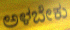
ಅಳಬೇಕು